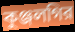
কুঞ্জলগির